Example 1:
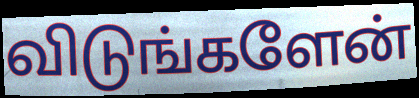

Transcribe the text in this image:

விடுங்களேன்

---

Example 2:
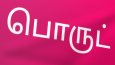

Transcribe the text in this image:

பொருட்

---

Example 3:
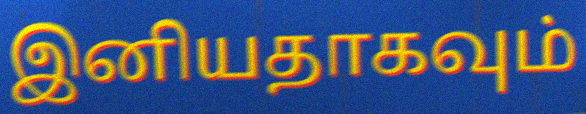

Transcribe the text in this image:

இனியதாகவும்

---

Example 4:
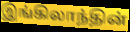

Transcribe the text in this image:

இங்கிலாந்தின்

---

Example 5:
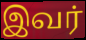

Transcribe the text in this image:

இவர்